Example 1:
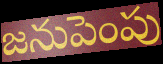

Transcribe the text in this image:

జనుపెంపు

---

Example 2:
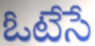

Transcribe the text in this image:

ఓటేసే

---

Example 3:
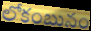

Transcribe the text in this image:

లోకంబునం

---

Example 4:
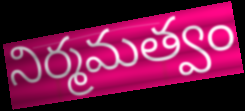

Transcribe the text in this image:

నిర్మమత్వం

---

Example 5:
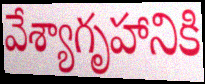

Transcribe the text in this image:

వేశ్యాగృహానికి